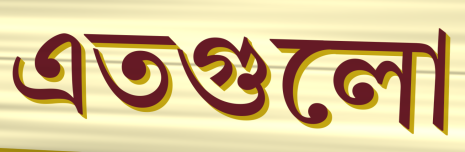
এতগুলো